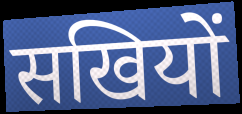
सखियों